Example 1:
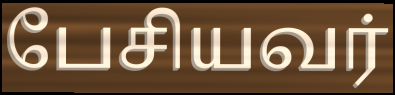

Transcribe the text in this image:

பேசியவர்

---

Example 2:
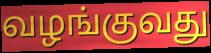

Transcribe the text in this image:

வழங்குவது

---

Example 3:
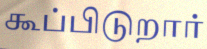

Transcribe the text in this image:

கூப்பிடுறார்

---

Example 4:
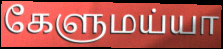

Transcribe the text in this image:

கேளுமய்யா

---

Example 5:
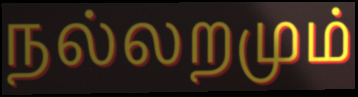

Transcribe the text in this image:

நல்லறமும்